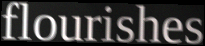
flourishes